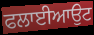
ਫਲਾਈਆਉਟ